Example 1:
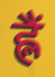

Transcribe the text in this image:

ह्लैं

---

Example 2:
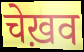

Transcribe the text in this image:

चेख़व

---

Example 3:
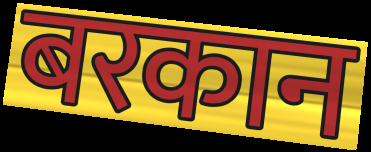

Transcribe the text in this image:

बरकान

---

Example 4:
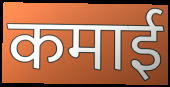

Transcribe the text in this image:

कमाई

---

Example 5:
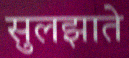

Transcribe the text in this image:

सुलझाते